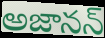
అజానన్